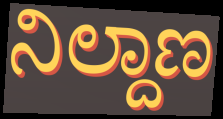
ನಿಲ್ದಾಣ